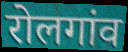
रोलगांव